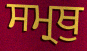
ਸਮ੍ਰਥੁ